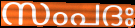
സംപദഃ